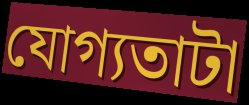
যোগ্যতাটা